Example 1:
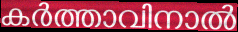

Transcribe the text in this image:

കർത്താവിനാൽ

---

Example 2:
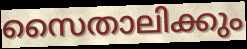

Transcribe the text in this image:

സൈതാലിക്കും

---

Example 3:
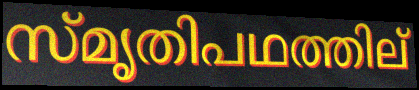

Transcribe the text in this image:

സ്മൃതിപഥത്തില്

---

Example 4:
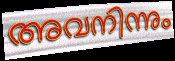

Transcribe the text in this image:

അവനിന്നും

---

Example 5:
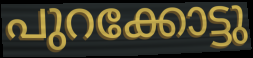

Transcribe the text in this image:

പുറക്കോട്ടു